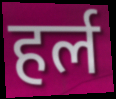
हर्ल